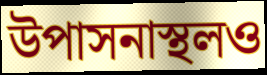
উপাসনাস্থলও